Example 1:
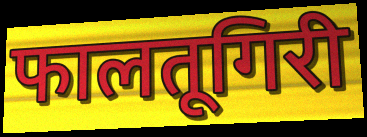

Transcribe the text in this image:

फालतूगिरी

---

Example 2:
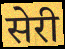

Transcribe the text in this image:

सेरी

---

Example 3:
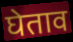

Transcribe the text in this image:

घेताव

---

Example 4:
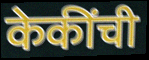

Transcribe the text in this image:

केकींची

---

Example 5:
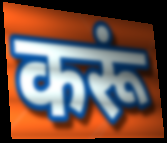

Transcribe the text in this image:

करूं